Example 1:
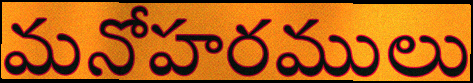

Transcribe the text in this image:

మనోహరములు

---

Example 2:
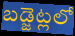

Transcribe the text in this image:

బడ్జెట్లలో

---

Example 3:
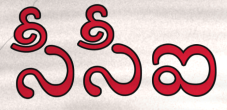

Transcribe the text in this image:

సీసీఐ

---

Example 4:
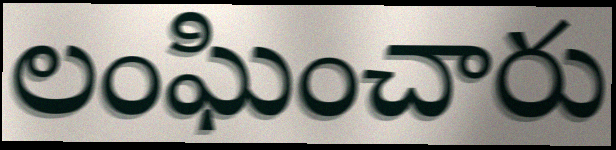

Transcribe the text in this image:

లంఘించారు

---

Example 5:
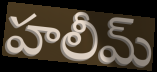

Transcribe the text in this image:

హలీమ్